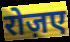
रोज़ए